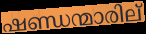
ഷണ്ഡന്മാരില്